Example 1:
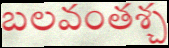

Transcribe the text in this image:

బలవంతశ్చ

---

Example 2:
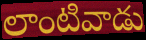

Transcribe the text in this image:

లాంటివాడు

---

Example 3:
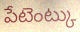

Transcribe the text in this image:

పేటెంట్కు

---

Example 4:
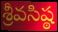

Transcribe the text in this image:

శ్రీవసిష్ఠ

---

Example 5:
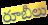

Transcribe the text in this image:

రూబీలు